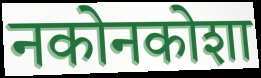
नकोनकोशा